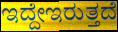
ಇದ್ದೇಇರುತ್ತದೆ